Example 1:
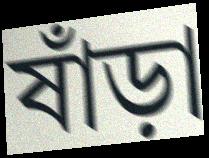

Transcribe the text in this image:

ষাঁড়া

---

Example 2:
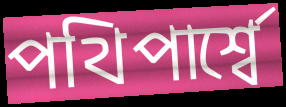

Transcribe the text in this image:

পথিপার্শ্বে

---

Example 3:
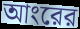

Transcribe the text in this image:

আংরের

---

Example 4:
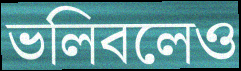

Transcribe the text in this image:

ভলিবলেও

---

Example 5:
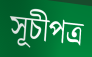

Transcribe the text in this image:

সূচীপত্র